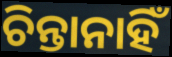
ଚିନ୍ତାନାହିଁ